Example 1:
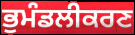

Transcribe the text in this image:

ਭੁਮੰਡਲੀਕਰਣ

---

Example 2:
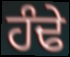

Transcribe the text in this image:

ਹੰਢੇ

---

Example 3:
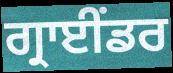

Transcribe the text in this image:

ਗ੍ਰਾਈਂਡਰ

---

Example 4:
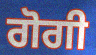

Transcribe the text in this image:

ਗੋਗੀ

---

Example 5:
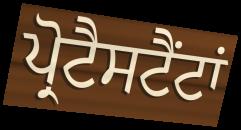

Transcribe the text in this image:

ਪ੍ਰੋਟੈਸਟੈਂਟਾਂ